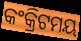
କଂକ୍ରିଟମୟ